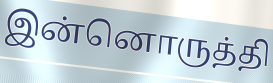
இன்னொருத்தி